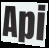
Api